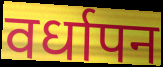
वर्धापन